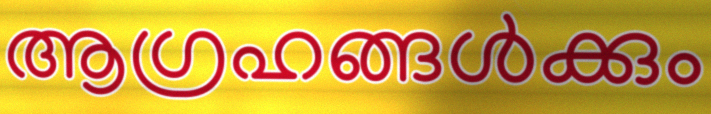
ആഗ്രഹങ്ങൾക്കും